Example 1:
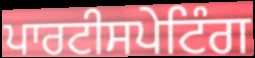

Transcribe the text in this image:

ਪਾਰਟੀਸਪੇਟਿੰਗ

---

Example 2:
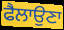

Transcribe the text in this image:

ਫੈਲਾਉਣਾ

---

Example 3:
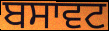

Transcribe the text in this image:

ਬਸਾਵਟ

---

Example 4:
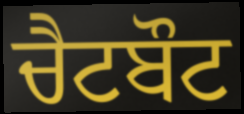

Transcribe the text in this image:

ਚੈਟਬੌਟ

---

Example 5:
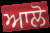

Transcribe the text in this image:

ਆਲੋ